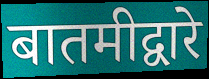
बातमीद्वारे